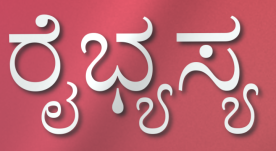
ರೈಭ್ಯಸ್ಯ